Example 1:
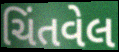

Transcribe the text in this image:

ચિંતવેલ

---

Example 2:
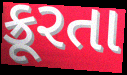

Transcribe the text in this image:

ક્રૂરતા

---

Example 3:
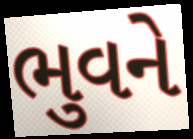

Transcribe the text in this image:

ભુવને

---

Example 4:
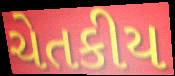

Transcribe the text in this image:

ચેતકીય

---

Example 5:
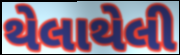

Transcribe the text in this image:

થેલાથેલી